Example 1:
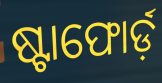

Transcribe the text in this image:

ଷ୍ଟାଫୋର୍ଡ଼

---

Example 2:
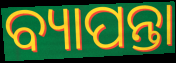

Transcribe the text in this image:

ବ୍ୟାପନ୍ତା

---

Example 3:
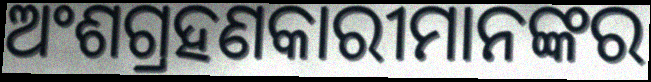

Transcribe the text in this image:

ଅଂଶଗ୍ରହଣକାରୀମାନଙ୍କର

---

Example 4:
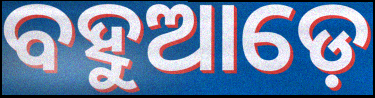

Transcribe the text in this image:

ବହୁଆଡ଼େ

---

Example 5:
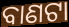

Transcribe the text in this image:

ବାଣଟା